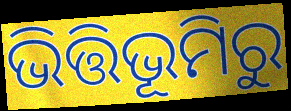
ଭିତ୍ତିଭୂମିରୁ